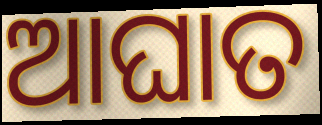
ଆଘାତ